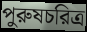
পুরুষচরিত্র